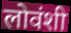
लोवंशी